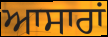
ਆਸਾਰਾਂ